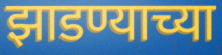
झाडण्याच्या